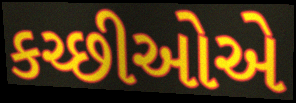
કચ્છીઓએ